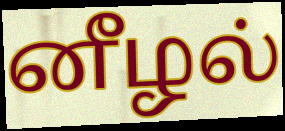
னீழல்